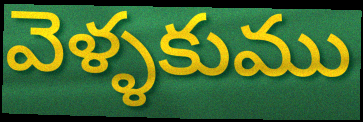
వెళ్ళకుము